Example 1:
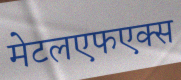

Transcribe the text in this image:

मेटलएफएक्स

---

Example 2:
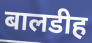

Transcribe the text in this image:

बालडीह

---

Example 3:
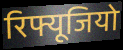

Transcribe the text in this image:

रिफ्यूजियो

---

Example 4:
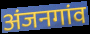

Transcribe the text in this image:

अंजनगांव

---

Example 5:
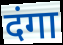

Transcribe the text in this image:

दंगा